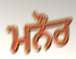
ਮਨੌਰ